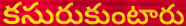
కసురుకుంటారు